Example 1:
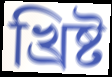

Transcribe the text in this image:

খ্রিষ্ট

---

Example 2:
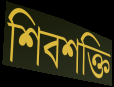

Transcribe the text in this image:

শিবশক্তি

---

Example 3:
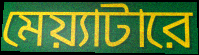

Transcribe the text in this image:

মেয়্যাটারে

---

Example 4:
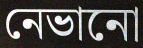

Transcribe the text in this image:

নেভানো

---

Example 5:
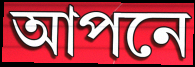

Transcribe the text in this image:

আপনে